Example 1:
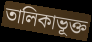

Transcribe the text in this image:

তালিকাভূক্ত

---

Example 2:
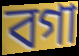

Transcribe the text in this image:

বগা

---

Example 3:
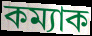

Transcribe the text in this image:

কম্যাক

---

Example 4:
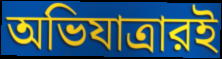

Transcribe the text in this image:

অভিযাত্রারই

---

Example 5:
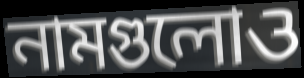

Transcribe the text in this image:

নামগুলোও